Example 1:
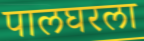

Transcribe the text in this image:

पालघरला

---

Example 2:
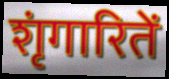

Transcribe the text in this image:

शृंगारितें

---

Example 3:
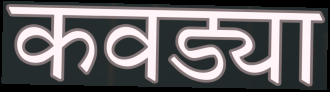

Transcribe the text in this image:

कवड्या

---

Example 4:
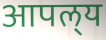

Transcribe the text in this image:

आपल्य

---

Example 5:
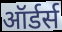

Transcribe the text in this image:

ऑर्डर्स